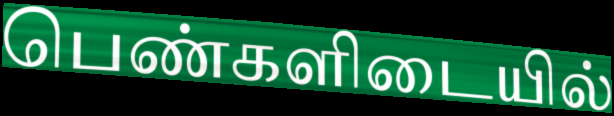
பெண்களிடையில்